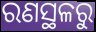
ରଣସ୍ଥଳରୁ